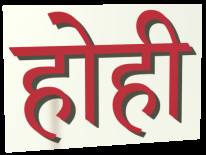
होही